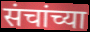
संचांच्या